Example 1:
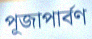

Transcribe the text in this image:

পূজাপার্বণ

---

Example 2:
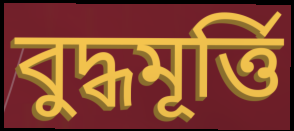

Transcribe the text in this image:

বুদ্ধমূর্ত্তি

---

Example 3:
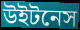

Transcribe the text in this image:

উইটনেস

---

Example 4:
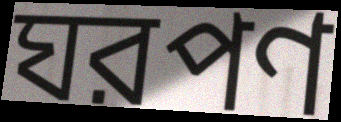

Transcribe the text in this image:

ঘরপণ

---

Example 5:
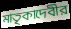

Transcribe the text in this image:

মাতৃকাদেবীর